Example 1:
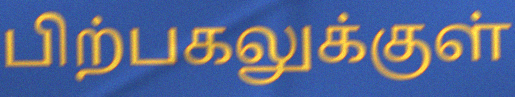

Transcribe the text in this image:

பிற்பகலுக்குள்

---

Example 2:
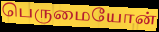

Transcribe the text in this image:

பெருமையோன்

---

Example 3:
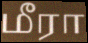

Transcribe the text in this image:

மீரா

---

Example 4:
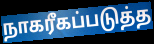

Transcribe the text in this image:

நாகரீகப்படுத்த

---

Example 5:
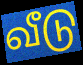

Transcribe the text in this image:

வீடு